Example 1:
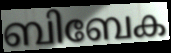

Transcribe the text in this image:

ബിബേക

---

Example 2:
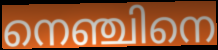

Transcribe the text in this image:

നെഞ്ചിനെ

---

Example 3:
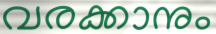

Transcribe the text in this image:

വരക്കാനും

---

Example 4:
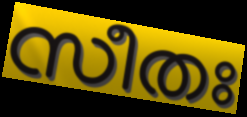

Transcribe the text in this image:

സീതഃ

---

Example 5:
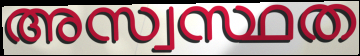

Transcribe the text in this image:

അസ്വസ്ഥത